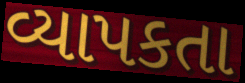
વ્યાપકતા